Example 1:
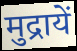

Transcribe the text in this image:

मुद्रायें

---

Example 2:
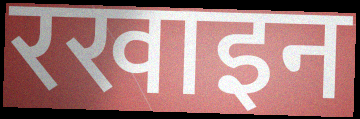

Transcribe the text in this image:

रखाइन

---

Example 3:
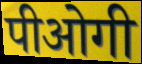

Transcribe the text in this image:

पीओगी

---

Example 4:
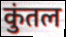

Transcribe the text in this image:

कुंतल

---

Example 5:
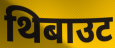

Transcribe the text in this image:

थिबाउट